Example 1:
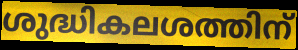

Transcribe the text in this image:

ശുദ്ധികലശത്തിന്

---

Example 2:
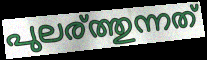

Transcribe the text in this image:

പുലര്ത്തുന്നത്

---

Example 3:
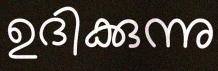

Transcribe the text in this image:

ഉദിക്കുന്നു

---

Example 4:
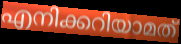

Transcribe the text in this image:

എനിക്കറിയാമത്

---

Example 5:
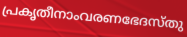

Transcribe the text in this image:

പ്രകൃതീനാംവരണഭേദസ്തു